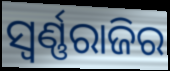
ସ୍ଵର୍ଣ୍ଣରାଜିର